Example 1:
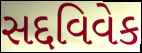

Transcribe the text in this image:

સદ્દવિવેક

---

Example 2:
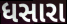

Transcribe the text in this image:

ધસારા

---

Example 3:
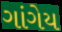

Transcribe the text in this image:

ગાંગેય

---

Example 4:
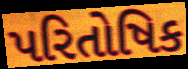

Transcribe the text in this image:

પરિતોષિક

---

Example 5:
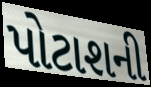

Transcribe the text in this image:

પોટાશની